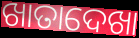
ଖାତାଦେଖା